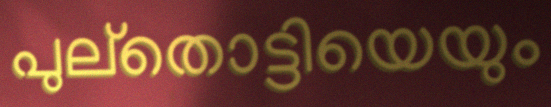
പുല്തൊട്ടിയെയും